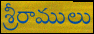
శ్రీరాములు